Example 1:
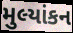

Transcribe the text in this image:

મુલ્યાંકન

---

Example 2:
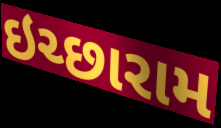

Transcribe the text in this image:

ઇચ્છારામ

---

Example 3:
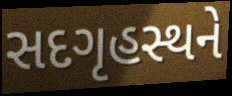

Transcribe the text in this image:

સદગૃહસ્થને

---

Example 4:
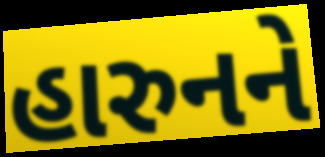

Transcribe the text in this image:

હારુનને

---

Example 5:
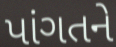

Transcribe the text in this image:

પાંગતને